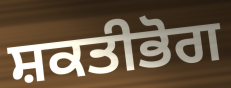
ਸ਼ਕਤੀਭੋਗ